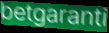
betgaranti